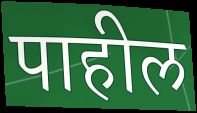
पाहील